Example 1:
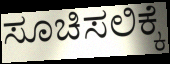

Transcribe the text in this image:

ಸೂಚಿಸಲಿಕ್ಕೆ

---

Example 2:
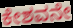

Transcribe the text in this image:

ಕೇಶವನೇ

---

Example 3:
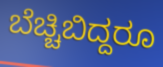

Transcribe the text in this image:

ಬೆಚ್ಚಿಬಿದ್ದರೂ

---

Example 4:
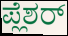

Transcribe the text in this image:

ಪ್ಲೆಶರ್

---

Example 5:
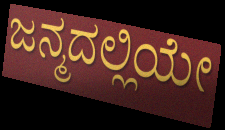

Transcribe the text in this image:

ಜನ್ಮದಲ್ಲಿಯೇ